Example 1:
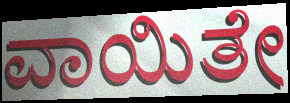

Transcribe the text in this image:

ವಾಯಿತೇ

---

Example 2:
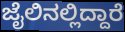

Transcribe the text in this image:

ಜೈಲಿನಲ್ಲಿದ್ದಾರೆ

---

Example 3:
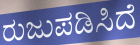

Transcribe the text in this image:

ರುಜುಪಡಿಸಿದೆ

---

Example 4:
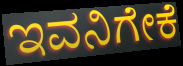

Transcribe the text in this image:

ಇವನಿಗೇಕೆ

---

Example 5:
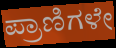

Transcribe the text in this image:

ಪ್ರಾಣಿಗಳೇ